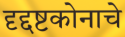
दृद्दष्टकोनाचे